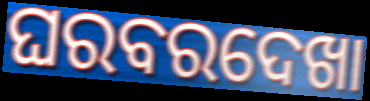
ଘରବରଦେଖା